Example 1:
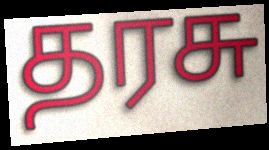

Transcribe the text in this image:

தரசு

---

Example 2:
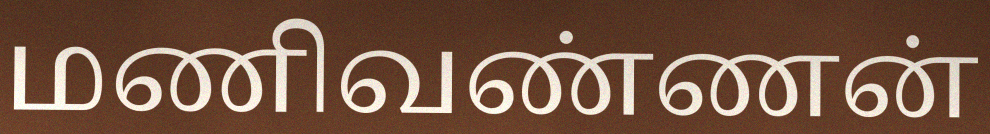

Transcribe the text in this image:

மணிவண்ணன்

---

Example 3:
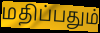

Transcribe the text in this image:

மதிப்பதும்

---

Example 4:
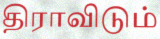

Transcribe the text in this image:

திராவிடும்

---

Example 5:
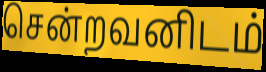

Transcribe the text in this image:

சென்றவனிடம்